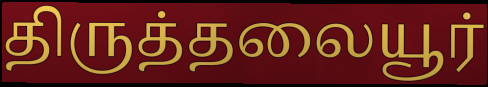
திருத்தலையூர்